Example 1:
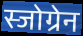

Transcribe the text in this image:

स्जोग्रेन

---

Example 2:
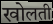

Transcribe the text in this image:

खोलती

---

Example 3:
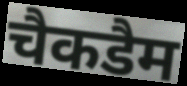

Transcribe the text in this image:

चैकडैम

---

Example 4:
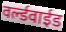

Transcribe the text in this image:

वर्ल्डवाईड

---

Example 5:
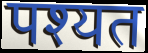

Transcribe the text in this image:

पश्यत